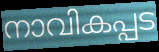
നാവികപ്പട